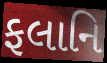
ફલાનિ